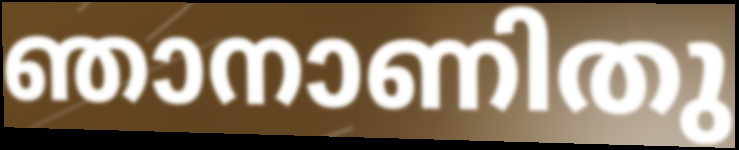
ഞാനാണിതു